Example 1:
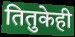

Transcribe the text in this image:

तितुकेही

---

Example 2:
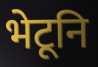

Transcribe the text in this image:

भेटूनि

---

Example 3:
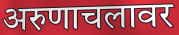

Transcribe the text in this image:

अरुणाचलावर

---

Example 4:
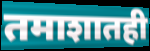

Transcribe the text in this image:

तमाशातही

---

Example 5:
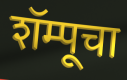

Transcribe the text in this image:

शॅम्पूचा